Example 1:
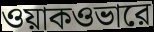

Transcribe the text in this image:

ওয়াকওভারে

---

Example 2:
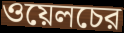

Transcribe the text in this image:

ওয়েলচের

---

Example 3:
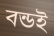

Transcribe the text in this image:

বন্ডই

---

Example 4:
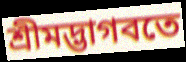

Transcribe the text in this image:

শ্রীমদ্ভাগবতে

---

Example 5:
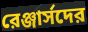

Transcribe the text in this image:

রেঞ্জার্সদের